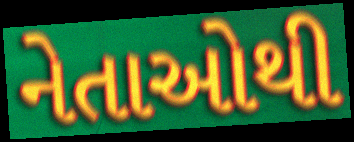
નેતાઓથી